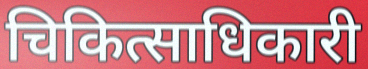
चिकित्साधिकारी